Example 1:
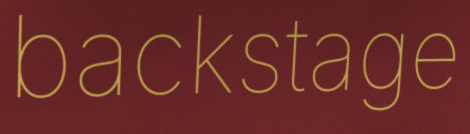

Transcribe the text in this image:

backstage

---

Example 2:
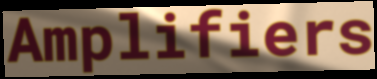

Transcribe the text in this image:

Amplifiers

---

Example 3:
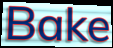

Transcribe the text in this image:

Bake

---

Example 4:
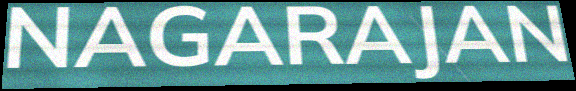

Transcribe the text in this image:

NAGARAJAN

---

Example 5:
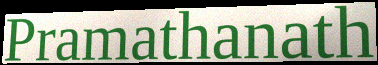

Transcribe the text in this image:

Pramathanath